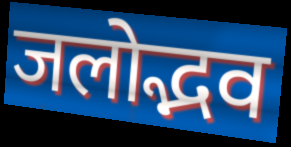
जलोद्भव